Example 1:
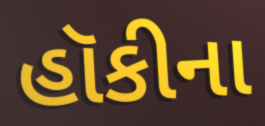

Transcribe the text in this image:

હૉકીના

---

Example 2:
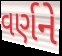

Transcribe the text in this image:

વર્ણને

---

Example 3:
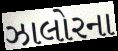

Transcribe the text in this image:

ઝાલોરના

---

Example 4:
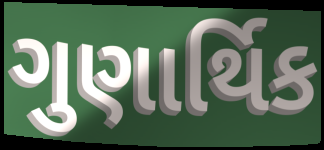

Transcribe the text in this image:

ગુણાર્થિક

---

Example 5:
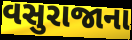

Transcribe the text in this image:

વસુરાજાના